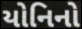
યોનિનો